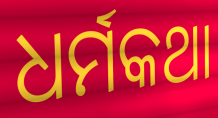
ଧର୍ମକଥା